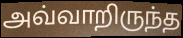
அவ்வாறிருந்த